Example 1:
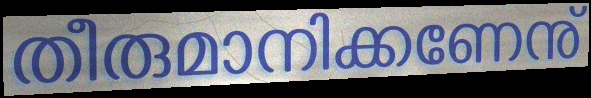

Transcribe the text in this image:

തീരുമാനിക്കണേനു്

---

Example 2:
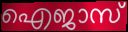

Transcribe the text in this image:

ഐജാസ്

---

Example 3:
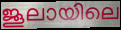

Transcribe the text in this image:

ജൂലായിലെ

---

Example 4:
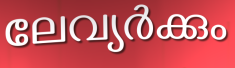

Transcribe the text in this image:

ലേവ്യർക്കും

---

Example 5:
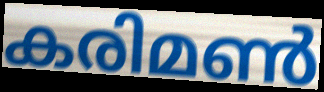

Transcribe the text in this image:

കരിമൺ